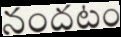
నందటం